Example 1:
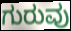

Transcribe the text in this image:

ಗುರುವು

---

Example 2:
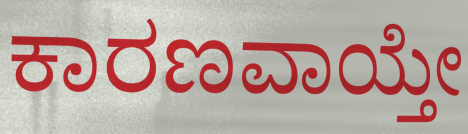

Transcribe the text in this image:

ಕಾರಣವಾಯ್ತೇ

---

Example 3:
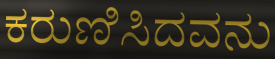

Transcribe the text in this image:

ಕರುಣಿಸಿದವನು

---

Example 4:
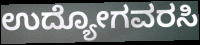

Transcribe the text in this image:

ಉದ್ಯೋಗವರಸಿ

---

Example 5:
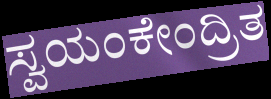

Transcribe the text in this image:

ಸ್ವಯಂಕೇಂದ್ರಿತ